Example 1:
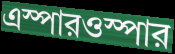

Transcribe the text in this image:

এস্পারওস্পার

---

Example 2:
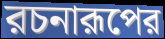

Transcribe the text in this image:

রচনারূপের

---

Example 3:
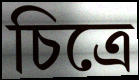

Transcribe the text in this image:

চিত্রে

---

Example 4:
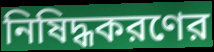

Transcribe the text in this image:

নিষিদ্ধকরণের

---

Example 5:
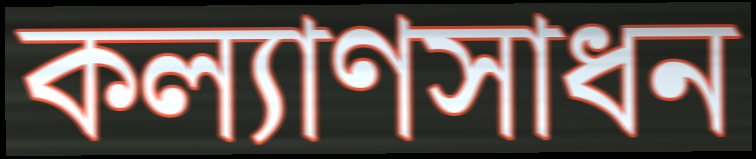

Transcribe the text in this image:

কল্যাণসাধন